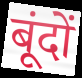
बूंदों